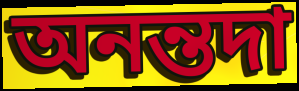
অনন্তদা